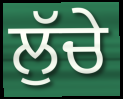
ਲੁੱਚੇ